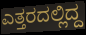
ಎತ್ತರದಲ್ಲಿದ್ದ